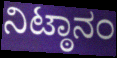
ನಿಟ್ಠಾನಂ